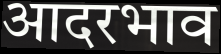
आदरभाव